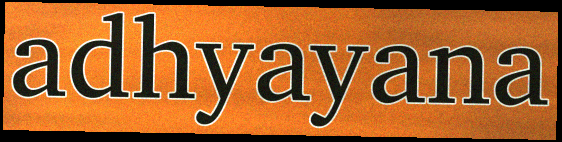
adhyayana